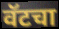
वॅटचा